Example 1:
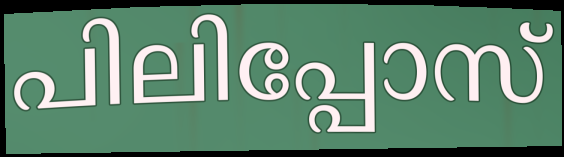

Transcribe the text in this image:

പിലിപ്പോസ്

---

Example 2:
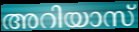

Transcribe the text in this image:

അറിയാസ്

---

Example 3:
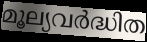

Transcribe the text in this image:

മൂല്യവർദ്ധിത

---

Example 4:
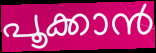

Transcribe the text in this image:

പൂക്കാൻ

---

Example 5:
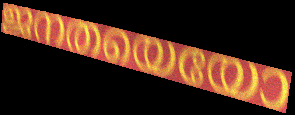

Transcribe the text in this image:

ജനതയെയോ